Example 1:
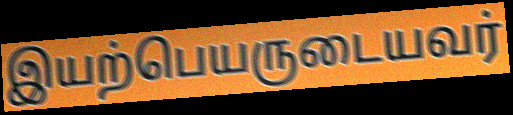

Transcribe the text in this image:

இயற்பெயருடையவர்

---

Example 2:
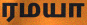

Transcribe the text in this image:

ரமயா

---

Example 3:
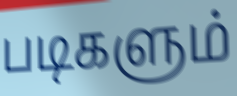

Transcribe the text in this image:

படிகளும்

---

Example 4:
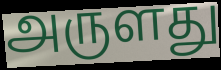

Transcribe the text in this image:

அருளது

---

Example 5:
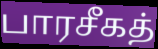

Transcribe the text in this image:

பாரசீகத்